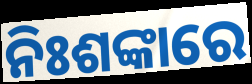
ନିଃଶଙ୍କାରେ